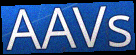
AAVs